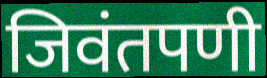
जिवंतपणी